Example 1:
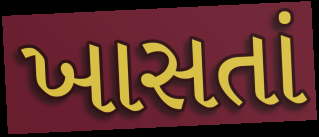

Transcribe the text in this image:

ખાસતાં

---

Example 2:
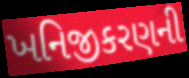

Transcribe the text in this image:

ખનિજીકરણની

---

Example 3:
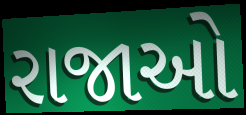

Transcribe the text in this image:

રાજાઓ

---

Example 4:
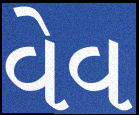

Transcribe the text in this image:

વેવ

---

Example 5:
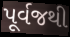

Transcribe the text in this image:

પૂર્વજથી